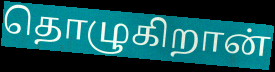
தொழுகிறான்